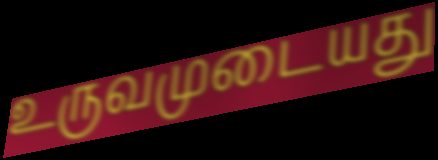
உருவமுடையது